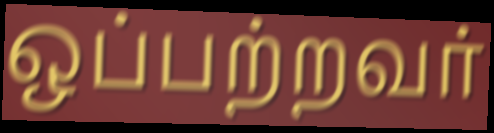
ஒப்பற்றவர்